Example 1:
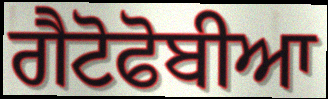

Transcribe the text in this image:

ਗੈਟੋਫੋਬੀਆ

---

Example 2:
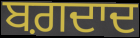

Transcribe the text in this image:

ਬ਼ਗਦਾਦ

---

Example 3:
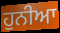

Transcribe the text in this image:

ਹੁਨੀਆ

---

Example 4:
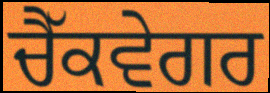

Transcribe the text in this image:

ਚੈੱਕਵੇਗਰ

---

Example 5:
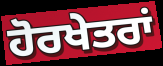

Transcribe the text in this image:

ਹੋਰਖੇਤਰਾਂ